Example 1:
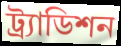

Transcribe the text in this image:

ট্র্যাডিশন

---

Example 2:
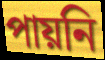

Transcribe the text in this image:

পায়নি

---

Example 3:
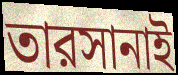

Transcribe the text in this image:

তারসানাই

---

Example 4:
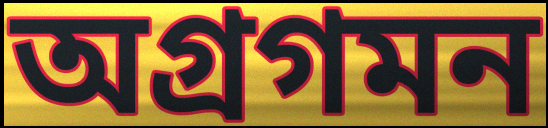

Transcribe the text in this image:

অগ্রগমন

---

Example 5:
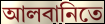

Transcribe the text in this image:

আলবানিতে